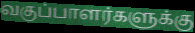
வகுப்பாளர்களுக்கு